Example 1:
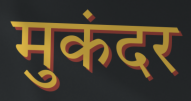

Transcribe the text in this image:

मुकंदर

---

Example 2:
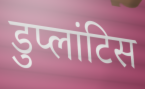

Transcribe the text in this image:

डुप्लांटिस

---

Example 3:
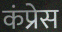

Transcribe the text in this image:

कंप्रेस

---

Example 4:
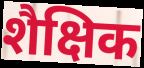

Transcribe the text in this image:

शैक्षिक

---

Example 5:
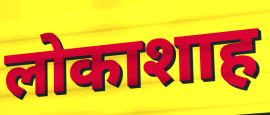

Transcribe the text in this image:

लोकाशाह